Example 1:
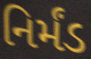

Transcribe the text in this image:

નિર્મંડ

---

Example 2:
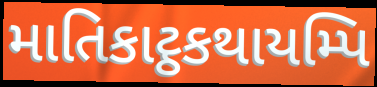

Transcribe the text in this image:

માતિકાટ્ઠકથાયમ્પિ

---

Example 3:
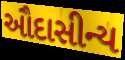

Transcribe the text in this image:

ઔદાસીન્ય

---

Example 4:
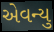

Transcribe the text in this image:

એવન્યુ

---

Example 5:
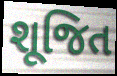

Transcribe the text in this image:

શૂજિત